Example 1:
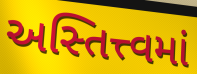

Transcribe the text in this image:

અસ્તિત્ત્વમાં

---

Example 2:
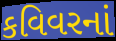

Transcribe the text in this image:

કવિવરનાં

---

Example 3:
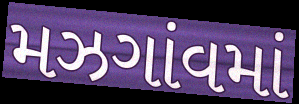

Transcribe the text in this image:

મઝગાંવમાં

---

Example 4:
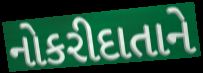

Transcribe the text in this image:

નોકરીદાતાને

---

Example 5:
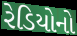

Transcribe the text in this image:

રેડિયોનો